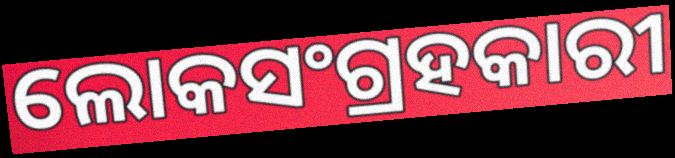
ଲୋକସଂଗ୍ରହକାରୀ